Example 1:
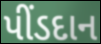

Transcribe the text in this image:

પીંડદાન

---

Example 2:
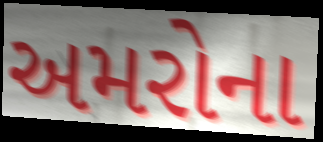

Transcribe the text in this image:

અમરોના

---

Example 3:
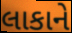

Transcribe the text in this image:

લાકાને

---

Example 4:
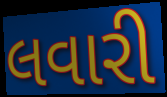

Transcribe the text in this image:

લવારી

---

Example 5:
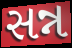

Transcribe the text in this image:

સન્ન